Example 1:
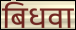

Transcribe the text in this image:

बिधवा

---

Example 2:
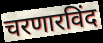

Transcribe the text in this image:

चरणारविंद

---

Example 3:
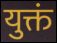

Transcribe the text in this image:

युक्तं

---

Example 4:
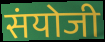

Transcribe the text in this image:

संयोजी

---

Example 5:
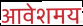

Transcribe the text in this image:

आवेशमय